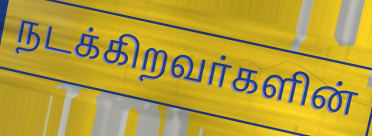
நடக்கிறவர்களின்